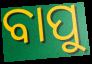
ବାପୁ